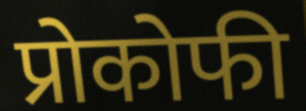
प्रोकोफी